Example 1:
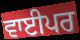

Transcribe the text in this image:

ਵਾਈਪਰ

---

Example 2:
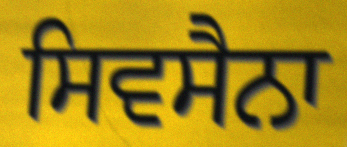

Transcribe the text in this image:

ਸਿਵਸੈਨਾ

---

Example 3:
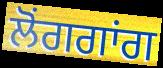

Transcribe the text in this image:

ਲੋਂਗਗਾਂਗ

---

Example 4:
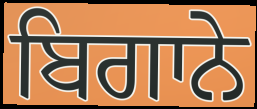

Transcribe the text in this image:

ਬਿਗਾਨੇ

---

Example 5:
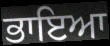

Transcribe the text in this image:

ਭਾਇਆ